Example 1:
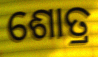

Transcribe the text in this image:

ଶୋତ୍ର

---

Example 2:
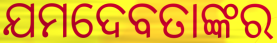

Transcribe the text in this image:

ଯମଦେବତାଙ୍କର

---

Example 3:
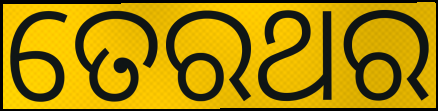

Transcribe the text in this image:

ତେରଥର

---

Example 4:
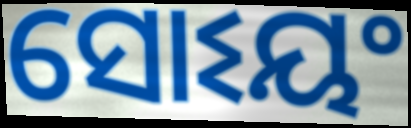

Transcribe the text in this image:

ସୋଽୟଂ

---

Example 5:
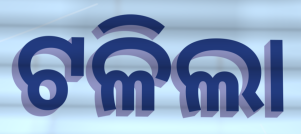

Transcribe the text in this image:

ଟଳିଲା